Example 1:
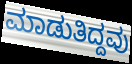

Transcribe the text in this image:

ಮಾಡುತಿದ್ದವು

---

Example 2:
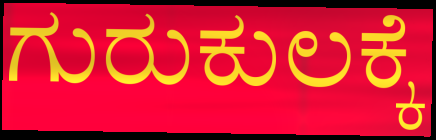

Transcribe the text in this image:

ಗುರುಕುಲಕ್ಕೆ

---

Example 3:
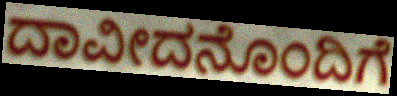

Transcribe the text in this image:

ದಾವೀದನೊಂದಿಗೆ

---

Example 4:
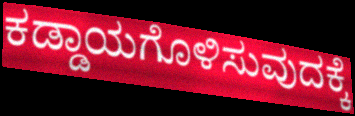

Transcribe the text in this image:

ಕಡ್ಡಾಯಗೊಳಿಸುವುದಕ್ಕೆ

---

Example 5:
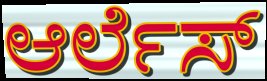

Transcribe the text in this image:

ಆರ್ಲೆಸ್